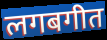
लगबगीत